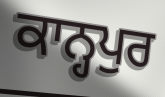
ਕਾਨ੍ਹਪੁਰ